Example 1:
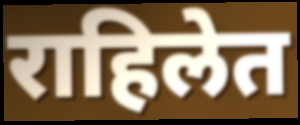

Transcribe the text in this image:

राहिलेत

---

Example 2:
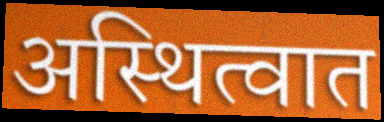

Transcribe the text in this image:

अस्थित्वात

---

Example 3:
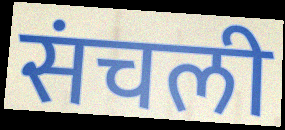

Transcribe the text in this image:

संचली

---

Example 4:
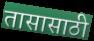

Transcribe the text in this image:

तासासाठी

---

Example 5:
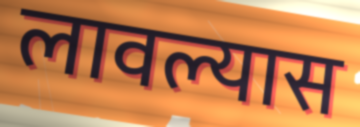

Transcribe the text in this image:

लावल्यास